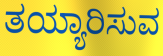
ತಯ್ಯಾರಿಸುವ